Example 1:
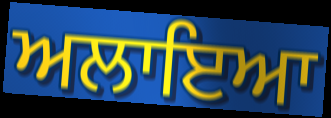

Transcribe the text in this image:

ਅਲਾਇਆ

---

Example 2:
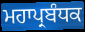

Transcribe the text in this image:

ਮਹਾਪ੍ਰਬੰਧਕ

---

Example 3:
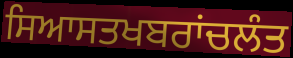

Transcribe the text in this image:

ਸਿਆਸਤਖਬਰਾਂਚਲੰਤ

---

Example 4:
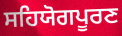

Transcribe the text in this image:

ਸਹਿਯੋਗਪੂਰਣ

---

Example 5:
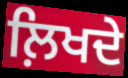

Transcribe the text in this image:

ਲ਼ਿਖਦੇ